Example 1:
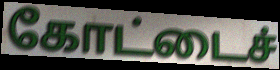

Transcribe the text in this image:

கோட்டைச்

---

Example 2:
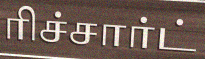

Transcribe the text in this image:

ரிச்சார்ட்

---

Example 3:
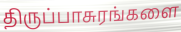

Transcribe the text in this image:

திருப்பாசுரங்களை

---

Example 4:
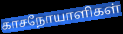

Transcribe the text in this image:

காசநோயாளிகள்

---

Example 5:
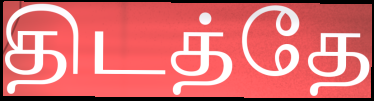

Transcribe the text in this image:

திடத்தே